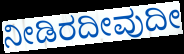
ನೀಡಿರದೀವುದೀ